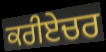
ਕਰੀਏਚਰ